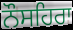
ਨੌਸਹਿਰਾ